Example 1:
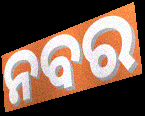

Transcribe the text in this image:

ନବର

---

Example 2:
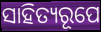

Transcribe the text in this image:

ସାହିତ୍ୟରୂପେ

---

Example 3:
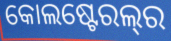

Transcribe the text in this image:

କୋଲଷ୍ଟେରଲ୍‌ର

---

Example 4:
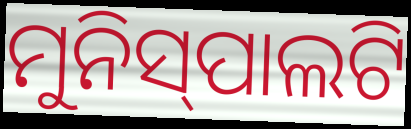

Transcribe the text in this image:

ମୁନିସ୍‍ପାଲଟି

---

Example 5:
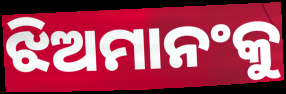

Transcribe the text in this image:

ଝିଅମାନଂକୁ